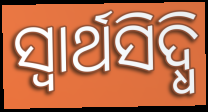
ସ୍ୱାର୍ଥସିଦ୍ଧି